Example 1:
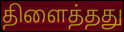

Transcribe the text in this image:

திளைத்தது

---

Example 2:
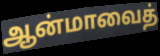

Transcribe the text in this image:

ஆன்மாவைத்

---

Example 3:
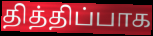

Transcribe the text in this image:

தித்திப்பாக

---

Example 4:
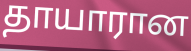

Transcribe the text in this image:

தாயாரான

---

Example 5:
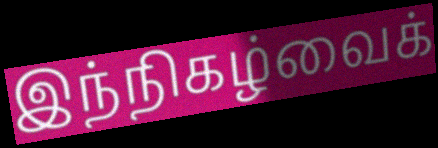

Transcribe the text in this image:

இந்நிகழ்வைக்